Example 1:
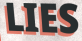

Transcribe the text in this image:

LIES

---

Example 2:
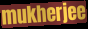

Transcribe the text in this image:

mukherjee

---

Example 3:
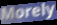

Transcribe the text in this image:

Morely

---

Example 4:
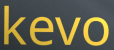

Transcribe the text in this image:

kevo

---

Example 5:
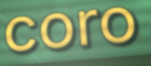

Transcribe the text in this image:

coro